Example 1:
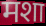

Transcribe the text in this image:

मशा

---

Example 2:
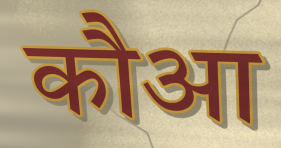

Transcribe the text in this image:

कौआ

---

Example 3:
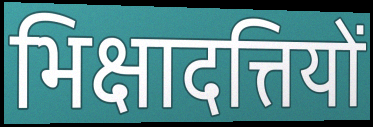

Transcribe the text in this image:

भिक्षादत्तियों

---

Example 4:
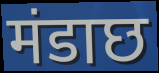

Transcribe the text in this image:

मंडाछ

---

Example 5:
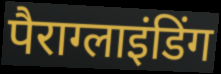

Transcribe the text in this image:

पैराग्लाइंडिंग